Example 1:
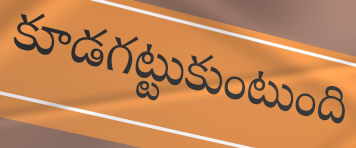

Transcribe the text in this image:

కూడగట్టుకుంటుంది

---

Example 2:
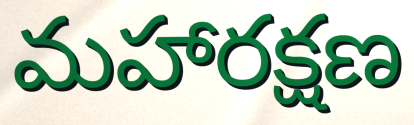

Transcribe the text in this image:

మహారక్షణ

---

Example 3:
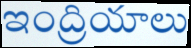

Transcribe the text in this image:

ఇంద్రియాలు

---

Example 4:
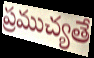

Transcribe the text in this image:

ప్రముచ్యతే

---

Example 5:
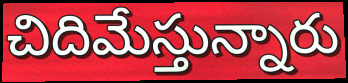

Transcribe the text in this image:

చిదిమేస్తున్నారు